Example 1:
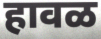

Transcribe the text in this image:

हावळ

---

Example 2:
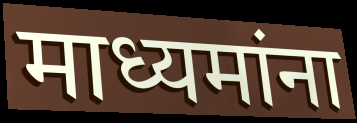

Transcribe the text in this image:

माध्यमांना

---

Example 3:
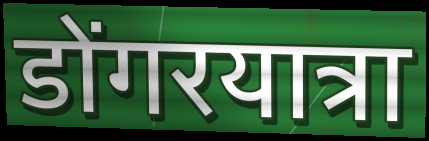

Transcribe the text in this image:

डोंगरयात्रा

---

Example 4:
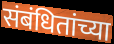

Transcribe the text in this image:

संबंधितांच्या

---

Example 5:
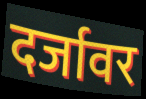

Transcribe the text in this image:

दर्जावर